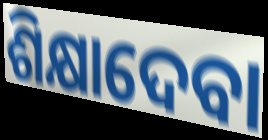
ଶିକ୍ଷାଦେବା